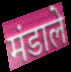
मंडाले